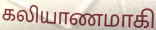
கலியாணமாகி